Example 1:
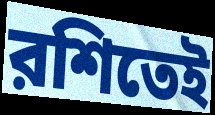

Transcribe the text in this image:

রশিতেই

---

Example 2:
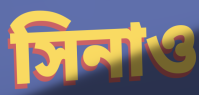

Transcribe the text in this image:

সিনাও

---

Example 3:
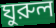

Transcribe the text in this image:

ঘুরুল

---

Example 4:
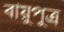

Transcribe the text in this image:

বায়ুপুত্র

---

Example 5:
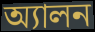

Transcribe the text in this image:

অ্যালন